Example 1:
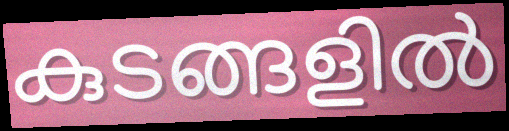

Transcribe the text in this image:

കുടങ്ങളിൽ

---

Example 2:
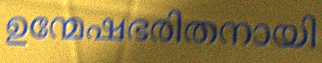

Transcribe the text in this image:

ഉന്മേഷഭരിതനായി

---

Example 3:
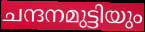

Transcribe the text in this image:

ചന്ദനമുട്ടിയും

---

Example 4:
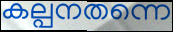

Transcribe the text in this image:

കല്പനതന്നെ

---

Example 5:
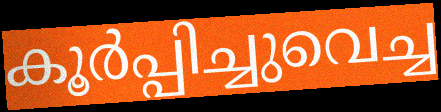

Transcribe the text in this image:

കൂർപ്പിച്ചുവെച്ച